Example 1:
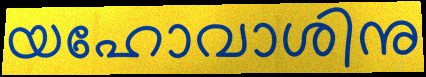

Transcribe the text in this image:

യഹോവാശിനു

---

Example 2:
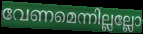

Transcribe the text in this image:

വേണമെന്നില്ലല്ലോ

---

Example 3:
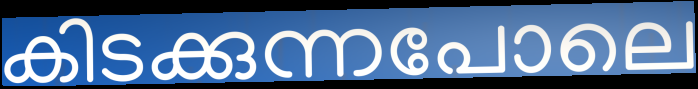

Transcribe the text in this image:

കിടക്കുന്നപോലെ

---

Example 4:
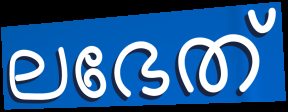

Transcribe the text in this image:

ലഭേത്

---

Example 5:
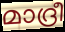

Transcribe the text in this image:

മാദ്രീ